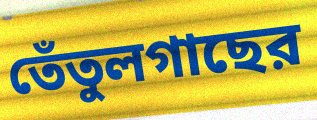
তেঁতুলগাছের